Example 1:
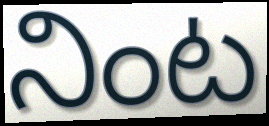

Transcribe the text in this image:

నింట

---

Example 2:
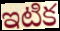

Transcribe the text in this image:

ఇటిక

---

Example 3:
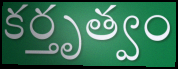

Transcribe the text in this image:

కర్తృత్వం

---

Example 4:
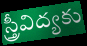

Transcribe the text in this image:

స్త్రీవిద్యకు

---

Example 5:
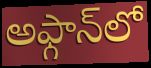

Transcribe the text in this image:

అఫ్గాన్‌లో